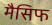
मैसिफ